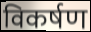
विकर्षण